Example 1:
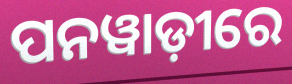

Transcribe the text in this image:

ପନୱାଡ଼ୀରେ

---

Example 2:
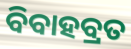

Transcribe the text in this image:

ବିବାହବ୍ରତ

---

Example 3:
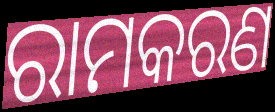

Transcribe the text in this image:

ରାମକରଣ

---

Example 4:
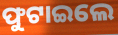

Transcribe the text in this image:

ଫୁଟାଇଲେ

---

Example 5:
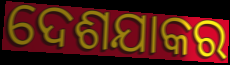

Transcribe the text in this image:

ଦେଶଯାକର